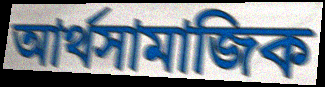
আর্থসামাজিক